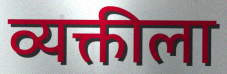
व्यक्तीला